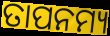
ତାପନମ୍ୟ